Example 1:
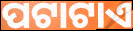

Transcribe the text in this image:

ପଟାଟାଏ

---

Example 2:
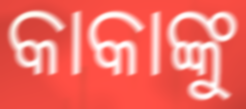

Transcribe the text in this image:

କାକାଙ୍କୁ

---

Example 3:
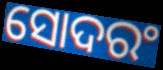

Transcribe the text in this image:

ସୋଦରଂ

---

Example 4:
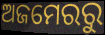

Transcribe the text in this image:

ଅଜମେରରୁ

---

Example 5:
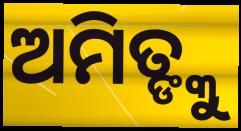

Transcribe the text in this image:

ଅମିତ୍ଙ୍କୁ